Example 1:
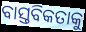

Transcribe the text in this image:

ବାସ୍ତବିକତାକୁ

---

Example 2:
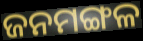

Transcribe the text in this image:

ଜନମଙ୍ଗଳ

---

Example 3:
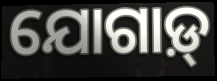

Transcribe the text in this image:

ଯୋଗାଡ଼୍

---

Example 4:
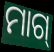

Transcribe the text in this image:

ମାଗ୍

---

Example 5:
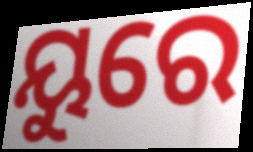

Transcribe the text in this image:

ୟୁରେ